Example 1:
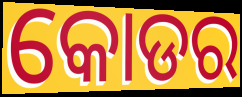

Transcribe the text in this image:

କୋଡର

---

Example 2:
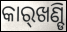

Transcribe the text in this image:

କାର୍‌ଖଣ୍ଡି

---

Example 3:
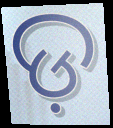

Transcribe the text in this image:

ଡ଼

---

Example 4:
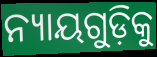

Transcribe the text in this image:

ନ୍ୟାୟଗୁଡ଼ିକୁ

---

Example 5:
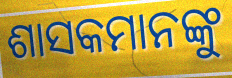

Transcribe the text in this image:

ଶାସକମାନଙ୍କୁ